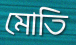
মোতি